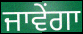
ਜਾਵੇਂਗਾ